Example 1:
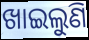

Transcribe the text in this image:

ଖାଇଲୁଣି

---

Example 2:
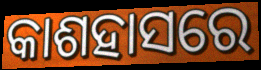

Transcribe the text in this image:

କାଶହାସରେ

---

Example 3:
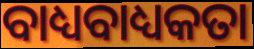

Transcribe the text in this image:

ବାଧ୍ୟବାଧ୍ୟକତା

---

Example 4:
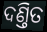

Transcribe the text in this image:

ଦଣ୍ତିତ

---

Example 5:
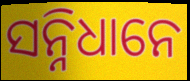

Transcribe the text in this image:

ସନ୍ନିଧାନେ